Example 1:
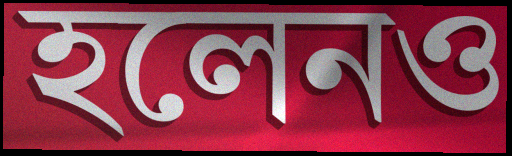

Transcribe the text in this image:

হলেনও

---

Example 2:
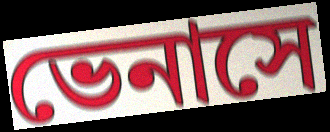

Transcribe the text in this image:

ভেনাসে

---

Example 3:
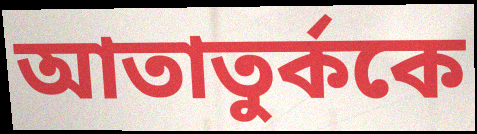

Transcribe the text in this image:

আতাতুর্ককে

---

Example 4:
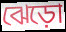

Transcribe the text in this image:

ঝেড়ো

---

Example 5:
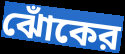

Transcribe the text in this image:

ঝোঁকের